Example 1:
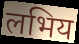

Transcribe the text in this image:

लभिय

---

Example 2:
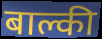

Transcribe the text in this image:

बाल्की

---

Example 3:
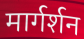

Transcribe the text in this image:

मार्गर्शन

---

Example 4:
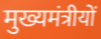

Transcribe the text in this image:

मुख्यमंत्रीयों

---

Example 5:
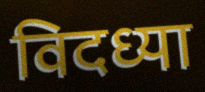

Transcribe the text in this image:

विदध्या